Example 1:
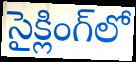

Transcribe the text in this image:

సైక్లింగ్‌లో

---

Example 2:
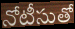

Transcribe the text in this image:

నోటీసుతో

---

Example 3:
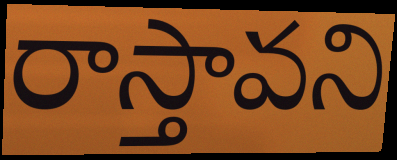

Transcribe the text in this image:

రాస్తావని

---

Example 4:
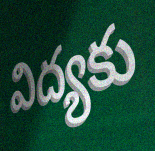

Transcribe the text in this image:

విద్యకు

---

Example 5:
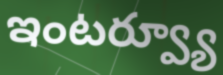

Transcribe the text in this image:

ఇంటర్వ్యూ